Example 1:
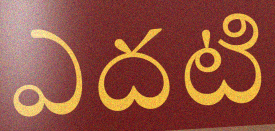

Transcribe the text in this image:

ఎదటి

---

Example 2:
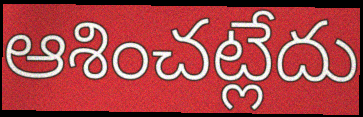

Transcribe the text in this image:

ఆశించట్లేదు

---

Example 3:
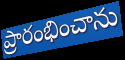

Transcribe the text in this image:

ప్రారంభించాను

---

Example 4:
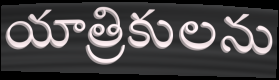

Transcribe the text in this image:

యాత్రికులను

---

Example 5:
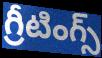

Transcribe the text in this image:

గ్రీటింగ్స్